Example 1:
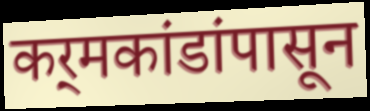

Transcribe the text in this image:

कर्मकांडांपासून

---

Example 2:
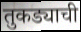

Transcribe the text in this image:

तुकड्याची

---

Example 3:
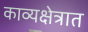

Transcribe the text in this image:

काव्यक्षेत्रात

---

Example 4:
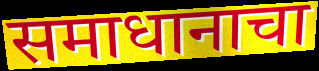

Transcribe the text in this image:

समाधानाचा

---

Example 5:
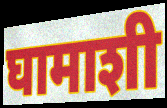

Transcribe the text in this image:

घामाशी